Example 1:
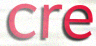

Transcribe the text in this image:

cre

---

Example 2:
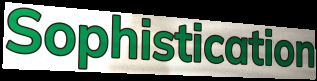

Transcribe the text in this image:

Sophistication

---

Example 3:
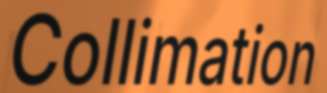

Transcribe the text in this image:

Collimation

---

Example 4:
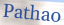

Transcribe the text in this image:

Pathao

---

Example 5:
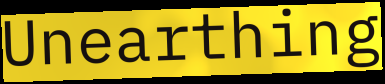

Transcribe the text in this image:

Unearthing